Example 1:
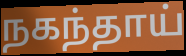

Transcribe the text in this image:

நகந்தாய்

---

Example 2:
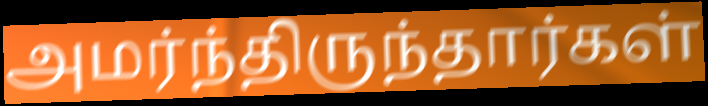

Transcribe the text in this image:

அமர்ந்திருந்தார்கள்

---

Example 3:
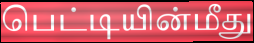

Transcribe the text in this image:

பெட்டியின்மீது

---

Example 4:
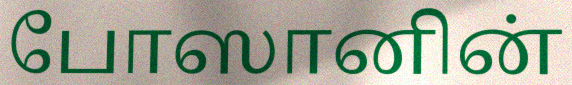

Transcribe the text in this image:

போஸானின்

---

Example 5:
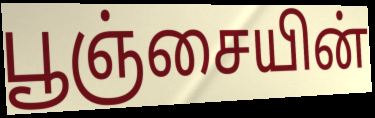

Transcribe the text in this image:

பூஞ்சையின்